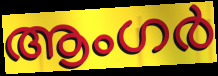
ആംഗർ